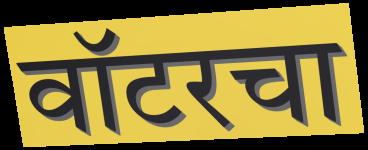
वॉटरचा